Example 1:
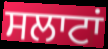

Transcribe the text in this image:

ਸਲਾਟਾਂ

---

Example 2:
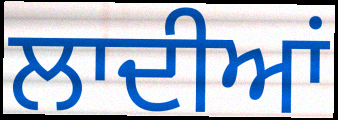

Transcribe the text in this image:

ਲਾਦੀਆਂ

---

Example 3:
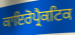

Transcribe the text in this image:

ਕਾਇਰੋਪ੍ਰੈਕਟਿਕ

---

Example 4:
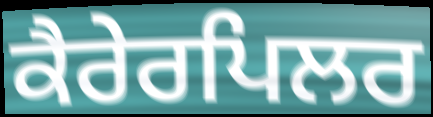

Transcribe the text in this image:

ਕੈਰੇਰਪਿਲਰ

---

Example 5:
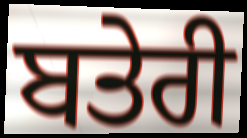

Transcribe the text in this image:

ਬਤੇਰੀ